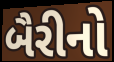
બૈરીનો